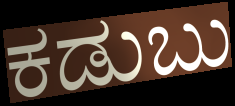
ಕಡುಬು